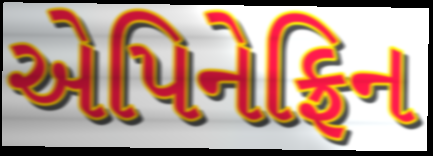
એપિનેફ્રિન